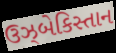
ઉઝ્બેકિસ્તાન